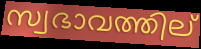
സ്വഭാവത്തില്